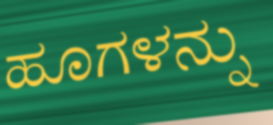
ಹೂಗಳನ್ನು